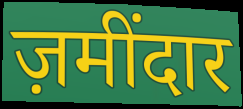
ज़मींदार